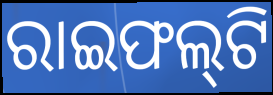
ରାଇଫଲ୍‌ଟି